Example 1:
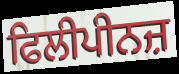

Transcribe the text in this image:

ਫਿਲੀਪੀਨਜ਼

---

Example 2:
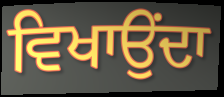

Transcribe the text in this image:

ਵਿਖਾਉਂਦਾ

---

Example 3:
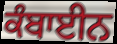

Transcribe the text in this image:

ਕੰਬਾਈਨ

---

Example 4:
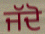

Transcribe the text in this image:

ਜੱਦੋ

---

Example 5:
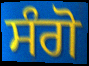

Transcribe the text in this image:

ਸੰਗੋ